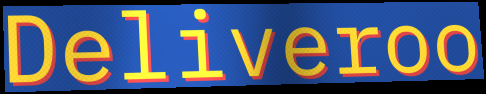
Deliveroo